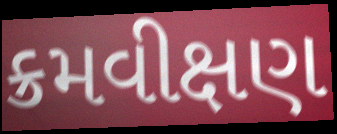
ક્રમવીક્ષણ